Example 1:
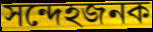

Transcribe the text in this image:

সন্দেহজনক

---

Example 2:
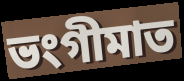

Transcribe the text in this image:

ভংগীমাত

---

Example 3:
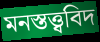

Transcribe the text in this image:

মনস্তত্ত্ববিদ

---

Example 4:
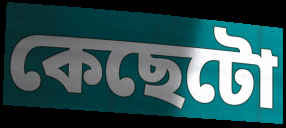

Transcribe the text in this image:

কেছেটো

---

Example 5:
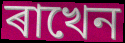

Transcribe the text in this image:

ৰাখেন